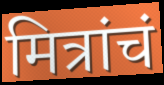
मित्रांचं